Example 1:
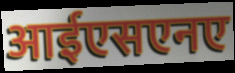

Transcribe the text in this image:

आईएसएनए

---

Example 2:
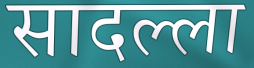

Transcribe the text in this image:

सादल्ला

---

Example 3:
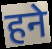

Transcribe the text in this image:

हने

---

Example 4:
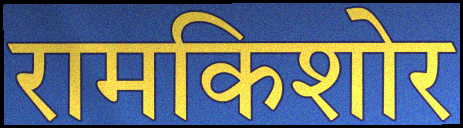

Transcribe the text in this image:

रामकिशोर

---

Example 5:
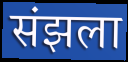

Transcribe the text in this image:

संझला